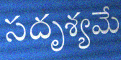
సదృశ్యమే